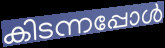
കിടന്നപ്പോൾ